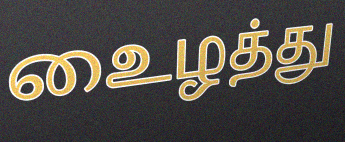
உைழத்து